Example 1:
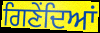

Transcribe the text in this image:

ਗਿਣੇਂਦਿਆਂ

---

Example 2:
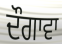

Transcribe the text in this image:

ਦੌਗਾਵਾ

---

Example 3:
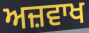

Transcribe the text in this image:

ਅਜ਼ਵਾਖ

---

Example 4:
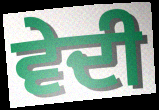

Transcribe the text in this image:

ਵੇਦੀ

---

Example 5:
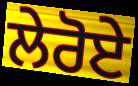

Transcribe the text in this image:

ਲੇਰੋਏ